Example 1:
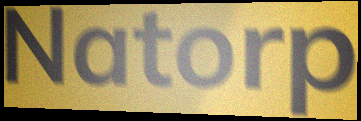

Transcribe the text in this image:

Natorp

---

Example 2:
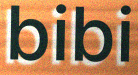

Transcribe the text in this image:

bibi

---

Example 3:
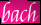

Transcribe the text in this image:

bach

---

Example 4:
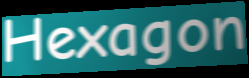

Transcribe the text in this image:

Hexagon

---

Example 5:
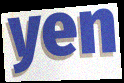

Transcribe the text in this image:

yen